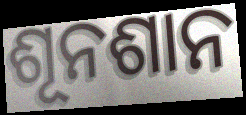
ଶୂନଶାନ